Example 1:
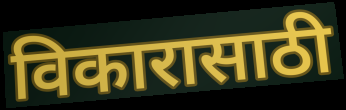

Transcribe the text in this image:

विकारासाठी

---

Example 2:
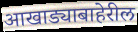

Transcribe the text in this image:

आखाड्याबाहेरील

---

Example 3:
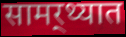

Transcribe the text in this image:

सामर्थ्यात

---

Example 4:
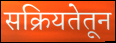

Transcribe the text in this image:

सक्रियतेतून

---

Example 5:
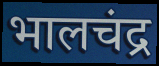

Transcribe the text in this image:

भालचंद्र